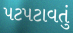
પટપટાવતું